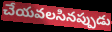
చేయవలసినప్పుడు